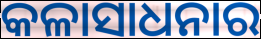
କଳାସାଧନାର